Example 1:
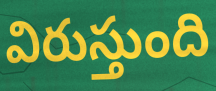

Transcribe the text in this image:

విరుస్తుంది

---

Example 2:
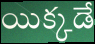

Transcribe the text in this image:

యిక్కడే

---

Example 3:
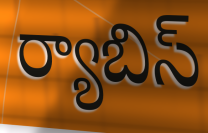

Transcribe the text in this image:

ర్యాబిస్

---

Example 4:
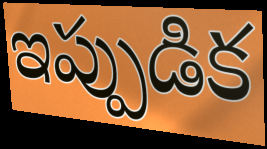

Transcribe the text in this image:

ఇప్పుడిక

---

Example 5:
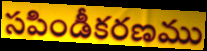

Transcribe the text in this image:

సపిండీకరణము